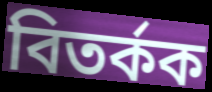
বিতৰ্কক